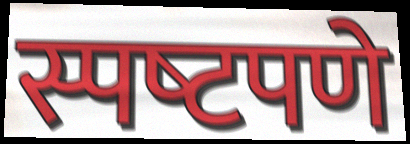
स्‍पष्‍टपणे